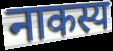
नाकस्य